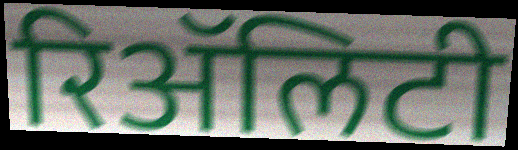
रिॲलिटी